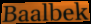
Baalbek